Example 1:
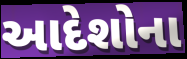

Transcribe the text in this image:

આદેશોના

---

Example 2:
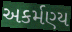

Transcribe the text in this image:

અકર્મણ્ય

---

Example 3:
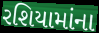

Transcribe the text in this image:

રશિયામાંના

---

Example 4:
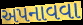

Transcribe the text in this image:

અપનાવવા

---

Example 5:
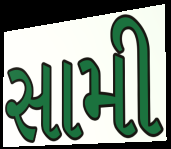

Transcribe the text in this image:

સામી